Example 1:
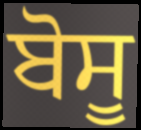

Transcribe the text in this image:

ਬੋਸੂ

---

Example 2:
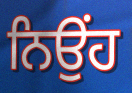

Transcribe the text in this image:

ਨਿਉਂਹ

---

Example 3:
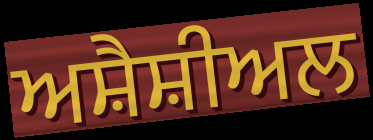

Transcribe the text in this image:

ਅਸ਼ੈਸ਼ੀਅਲ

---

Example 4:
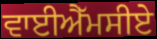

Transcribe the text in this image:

ਵਾਈਐੱਮਸੀਏ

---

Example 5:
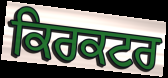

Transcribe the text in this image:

ਕਿਰਕਟਰ